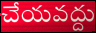
చేయవద్దు